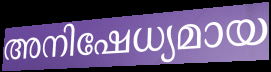
അനിഷേധ്യമായ